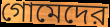
গোমেদের